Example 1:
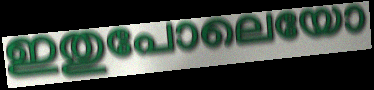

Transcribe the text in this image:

ഇതുപോലെയോ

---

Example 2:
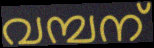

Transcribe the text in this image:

വമ്പന്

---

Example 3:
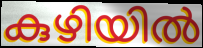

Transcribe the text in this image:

കുഴിയിൽ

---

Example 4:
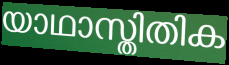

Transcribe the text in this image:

യാഥാസ്തിതിക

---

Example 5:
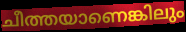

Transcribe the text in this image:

ചീത്തയാണെങ്കിലും